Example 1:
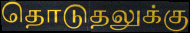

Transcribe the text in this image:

தொடுதலுக்கு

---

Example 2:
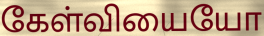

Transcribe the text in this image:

கேள்வியையோ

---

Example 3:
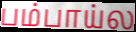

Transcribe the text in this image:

பம்பாய்ல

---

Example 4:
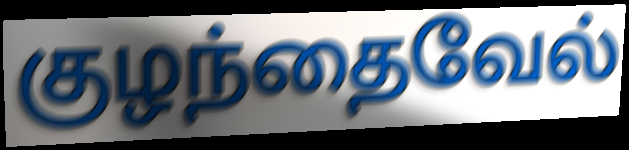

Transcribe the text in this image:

குழந்தைவேல்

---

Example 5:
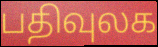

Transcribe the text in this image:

பதிவுலக